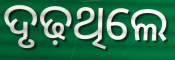
ଦୃଢ଼ଥିଲେ